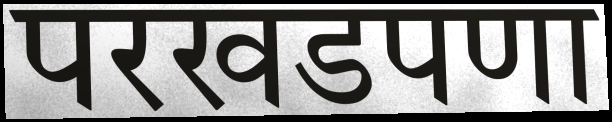
परखडपणा